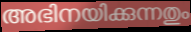
അഭിനയിക്കുന്നതും